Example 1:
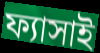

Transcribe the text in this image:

ফ্যাসাই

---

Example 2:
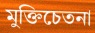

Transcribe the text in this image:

মুক্তিচেতনা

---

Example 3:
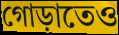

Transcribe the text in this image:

গোড়াতেও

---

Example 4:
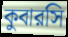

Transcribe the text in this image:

কুবারসি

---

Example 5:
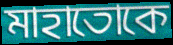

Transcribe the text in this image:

মাহাতোকে